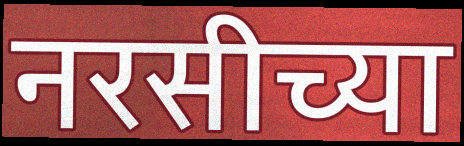
नरसीच्या